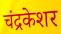
चंद्रकेशर